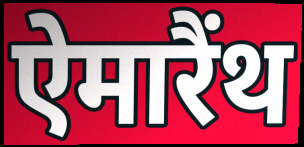
ऐमारैंथ